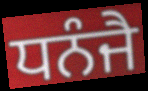
ਧਨੰਜੈ